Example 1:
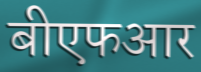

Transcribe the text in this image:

बीएफआर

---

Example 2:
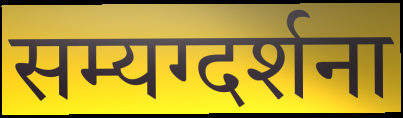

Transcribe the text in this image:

सम्यग्दर्शना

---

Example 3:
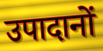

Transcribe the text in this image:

उपादानों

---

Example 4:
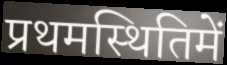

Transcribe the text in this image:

प्रथमस्थितिमें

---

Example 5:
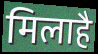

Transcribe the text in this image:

मिलाहै